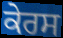
ਕੇਰਸ